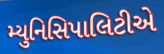
મ્યુનિસિપાલિટીએ